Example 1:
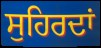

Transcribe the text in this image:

ਸੁਹਿਰਦਾਂ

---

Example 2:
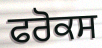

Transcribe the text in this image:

ਫਰੋਕਸ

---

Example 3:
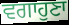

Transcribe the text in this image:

ਵਗਾਹੁਣਾ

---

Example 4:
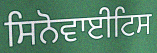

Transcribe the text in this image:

ਸਿਨੋਵਾਈਟਿਸ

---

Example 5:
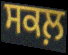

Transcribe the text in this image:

ਸਕਲ਼